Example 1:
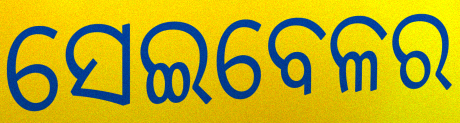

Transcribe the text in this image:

ସେଇବେଳର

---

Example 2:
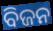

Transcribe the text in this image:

ବିଜନ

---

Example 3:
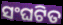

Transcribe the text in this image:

ସଂଘଟିତ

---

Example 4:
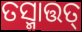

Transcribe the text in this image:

ତସ୍ମାତ୍ତତ୍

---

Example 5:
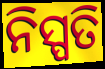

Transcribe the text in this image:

ନିସ୍ପତି